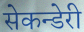
सेकन्डेरी